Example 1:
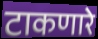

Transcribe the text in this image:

टाकणारे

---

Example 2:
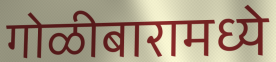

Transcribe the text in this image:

गोळीबारामध्ये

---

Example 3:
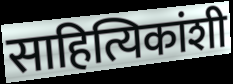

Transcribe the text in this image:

साहित्यिकांशी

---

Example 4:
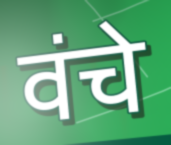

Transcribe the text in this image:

वंचे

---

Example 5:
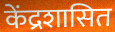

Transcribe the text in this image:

केंद्रशासित